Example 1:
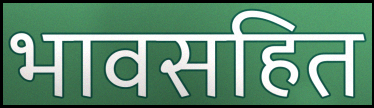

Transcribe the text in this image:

भावसहित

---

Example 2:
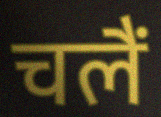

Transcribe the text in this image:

चलैं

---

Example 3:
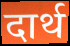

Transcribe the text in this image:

दार्थ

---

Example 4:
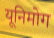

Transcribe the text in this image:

यूनिमोग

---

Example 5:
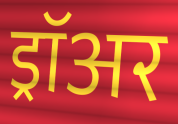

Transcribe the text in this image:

ड्रॉअर